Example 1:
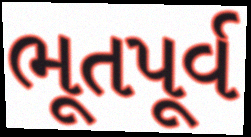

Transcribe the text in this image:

ભૂતપૂર્વ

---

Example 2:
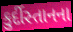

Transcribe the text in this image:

કુર્દીસ્તાનના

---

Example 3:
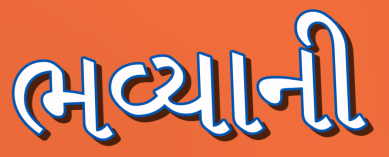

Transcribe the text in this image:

ભવ્યાની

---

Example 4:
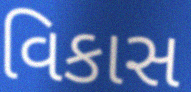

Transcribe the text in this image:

વિકાસ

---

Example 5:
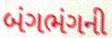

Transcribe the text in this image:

બંગભંગની